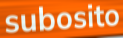
subosito